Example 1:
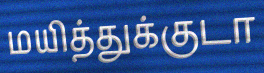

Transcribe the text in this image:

மயித்துக்குடா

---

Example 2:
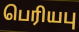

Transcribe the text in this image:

பெரியபு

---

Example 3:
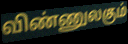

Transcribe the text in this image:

விண்ணுலகும்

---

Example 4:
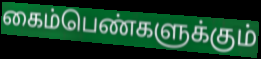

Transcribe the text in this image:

கைம்பெண்களுக்கும்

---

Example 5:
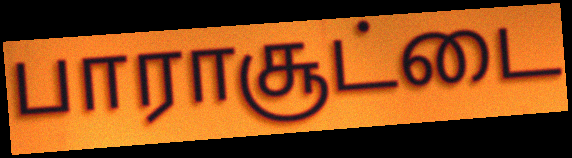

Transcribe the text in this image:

பாராசூட்டை